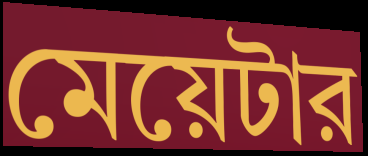
মেয়েটার